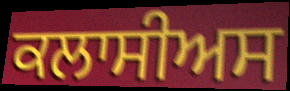
ਕਲਾਸੀਅਸ